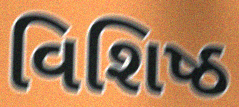
વિશિષ્ઠ